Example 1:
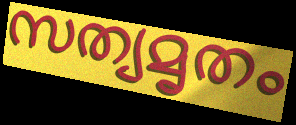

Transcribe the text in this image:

സത്യമൃതം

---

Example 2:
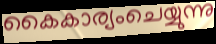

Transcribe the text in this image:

കൈകാര്യംചെയ്യുന്നു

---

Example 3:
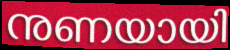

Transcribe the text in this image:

നുണയായി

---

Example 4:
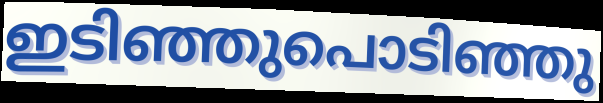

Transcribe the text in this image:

ഇടിഞ്ഞുപൊടിഞ്ഞു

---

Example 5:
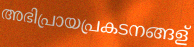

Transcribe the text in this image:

അഭിപ്രായപ്രകടനങ്ങള്